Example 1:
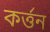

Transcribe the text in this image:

কর্ত্তন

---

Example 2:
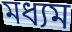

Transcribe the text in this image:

মধ্যম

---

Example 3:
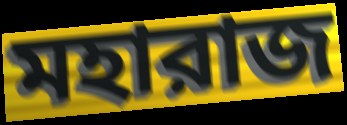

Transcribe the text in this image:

মহারাজ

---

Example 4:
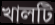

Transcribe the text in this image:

খালটি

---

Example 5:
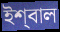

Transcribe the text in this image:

ইশ্‌বাল